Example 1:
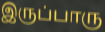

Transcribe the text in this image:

இருப்பாரு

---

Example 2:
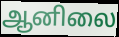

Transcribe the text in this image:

ஆனிலை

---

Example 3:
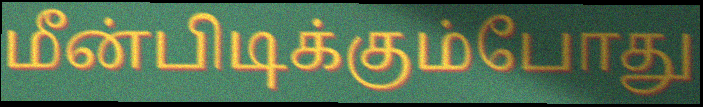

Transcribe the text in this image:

மீன்பிடிக்கும்போது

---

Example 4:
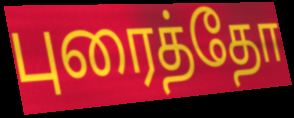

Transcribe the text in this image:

புரைத்தோ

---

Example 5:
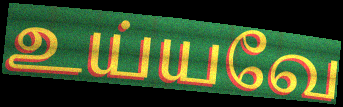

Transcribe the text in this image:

உய்யவே